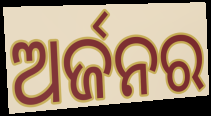
ଅର୍ଜନର